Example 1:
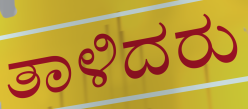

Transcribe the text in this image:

ತಾಳಿದರು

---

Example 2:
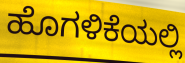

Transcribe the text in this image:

ಹೊಗಳಿಕೆಯಲ್ಲಿ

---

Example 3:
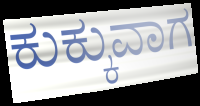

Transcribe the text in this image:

ಕುಕ್ಕುವಾಗ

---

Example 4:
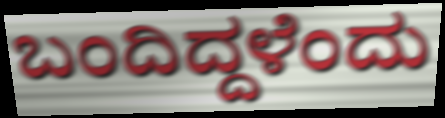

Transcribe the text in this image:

ಬಂದಿದ್ದಳೆಂದು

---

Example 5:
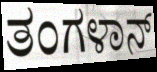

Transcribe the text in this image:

ತಂಗಳಾನ್